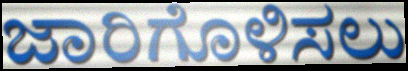
ಜಾರಿಗೊಳಿಸಲು